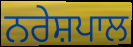
ਨਰੇਸ਼ਪਾਲ